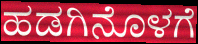
ಹಡಗಿನೊಳಗೆ